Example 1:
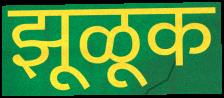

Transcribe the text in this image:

झूळूक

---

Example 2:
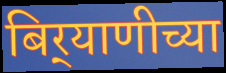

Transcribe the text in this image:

बिर्याणीच्या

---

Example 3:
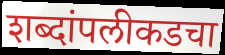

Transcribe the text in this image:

शब्दांपलीकडचा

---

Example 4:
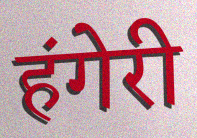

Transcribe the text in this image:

हंगेरी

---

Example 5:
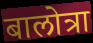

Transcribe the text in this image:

बालोत्रा